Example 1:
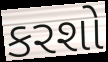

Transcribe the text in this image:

કરશો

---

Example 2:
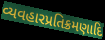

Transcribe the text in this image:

વ્યવહારપ્રતિક્રમણાદિ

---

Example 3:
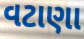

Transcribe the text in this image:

વટાણા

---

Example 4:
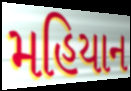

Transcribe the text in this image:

મહિયાન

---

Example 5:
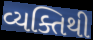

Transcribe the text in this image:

વ્યક્તિથી